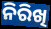
ନିରିଖି